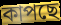
কাপছে